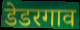
डेडरगाव